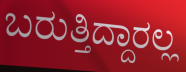
ಬರುತ್ತಿದ್ದಾರಲ್ಲ